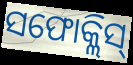
ସଫୋକ୍ଲିସ୍